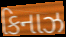
કિનાઝ